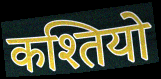
कश्तियो